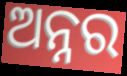
ଅନ୍ନର